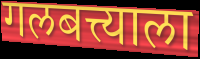
गलबत्त्याला